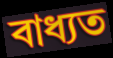
বাধ্যত